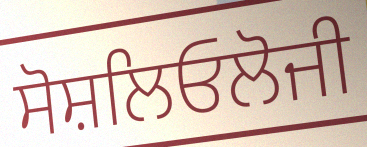
ਸੋਸ਼ਲਿਓਲੋਜੀ